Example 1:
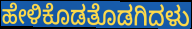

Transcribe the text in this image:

ಹೇಳಿಕೊಡತೊಡಗಿದಳು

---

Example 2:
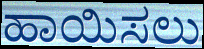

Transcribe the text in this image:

ಹಾಯಿಸಲು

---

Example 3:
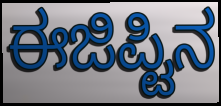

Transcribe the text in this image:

ಈಜಿಪ್ಟಿನ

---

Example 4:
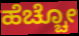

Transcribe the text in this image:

ಹೆಚ್ಚೋ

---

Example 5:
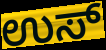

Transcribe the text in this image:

ಉಸ್